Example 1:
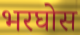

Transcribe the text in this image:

भरघोस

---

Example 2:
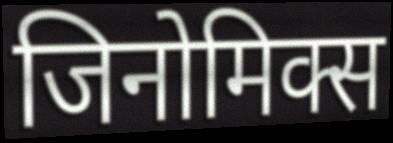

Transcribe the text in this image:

जिनोमिक्स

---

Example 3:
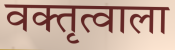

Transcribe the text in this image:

वक्तृत्वाला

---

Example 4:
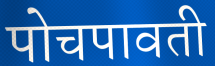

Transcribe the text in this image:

पोचपावती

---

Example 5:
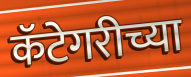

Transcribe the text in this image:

कॅटेगरीच्या